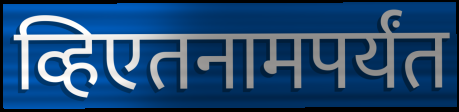
व्हिएतनामपर्यंत